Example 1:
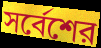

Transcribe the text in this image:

সর্বেশের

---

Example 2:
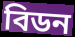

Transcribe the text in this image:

বিডন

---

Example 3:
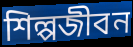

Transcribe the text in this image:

শিল্পজীবন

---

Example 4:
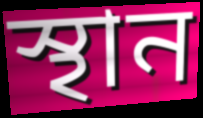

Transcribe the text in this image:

স্থান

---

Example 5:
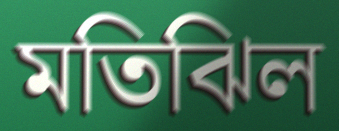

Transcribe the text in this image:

মতিঝিল